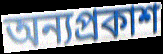
অন্যপ্রকাশ